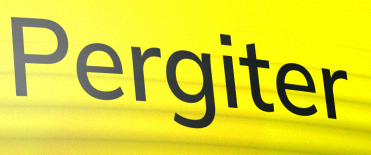
Pergiter